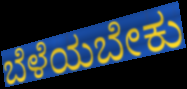
ಬೆಳೆಯಬೇಕು